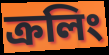
ক্রলিং